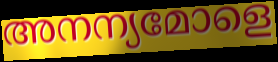
അനന്യമോളെ